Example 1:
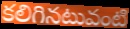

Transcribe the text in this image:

కలిగినటువంటి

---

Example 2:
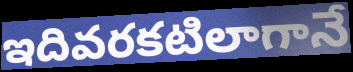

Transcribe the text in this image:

ఇదివరకటిలాగానే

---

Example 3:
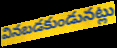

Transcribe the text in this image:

వినబడకుండునట్లు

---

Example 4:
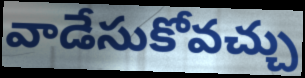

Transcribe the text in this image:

వాడేసుకోవచ్చు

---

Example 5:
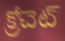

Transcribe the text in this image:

క్రోచెట్